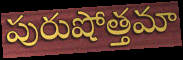
పురుషోత్తమా